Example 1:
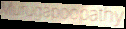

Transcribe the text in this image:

Murugapoopathy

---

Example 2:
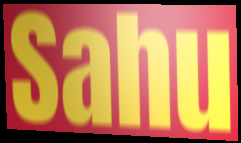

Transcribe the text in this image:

Sahu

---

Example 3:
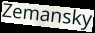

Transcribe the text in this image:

Zemansky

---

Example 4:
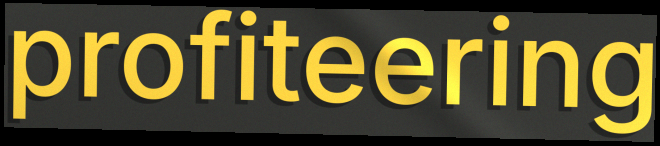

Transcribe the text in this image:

profiteering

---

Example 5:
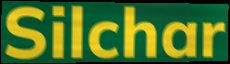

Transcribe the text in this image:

Silchar